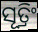
ସୂତ୍ରିଂ